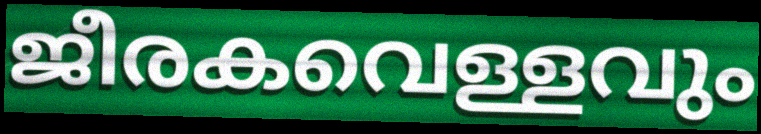
ജീരകവെള്ളവും